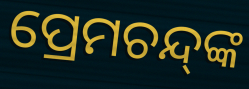
ପ୍ରେମଚନ୍ଦ୍‌ଙ୍କ